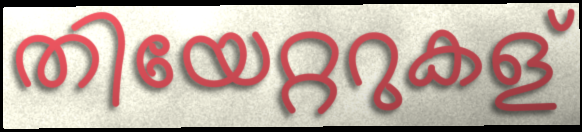
തിയേറ്ററുകള്